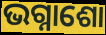
ଭଗ୍ନାଶୋ